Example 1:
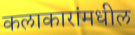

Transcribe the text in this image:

कलाकारांमधील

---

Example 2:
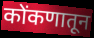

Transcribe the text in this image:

कोंकणातून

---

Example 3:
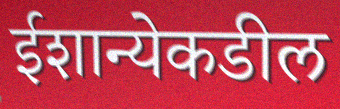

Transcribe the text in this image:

ईशान्येकडील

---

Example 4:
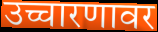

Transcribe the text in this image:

उच्चारणावर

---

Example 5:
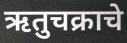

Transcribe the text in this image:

ऋतुचक्राचे